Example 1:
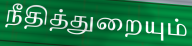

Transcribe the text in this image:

நீதித்துறையும்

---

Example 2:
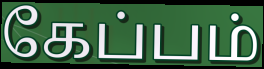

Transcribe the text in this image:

கேப்பம்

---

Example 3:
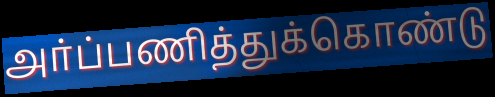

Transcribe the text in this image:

அர்ப்பணித்துக்கொண்டு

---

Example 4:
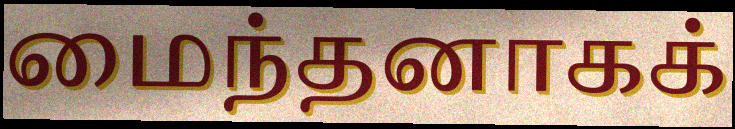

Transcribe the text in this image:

மைந்தனாகக்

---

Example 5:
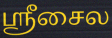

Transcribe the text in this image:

ஸ்ரீசைல